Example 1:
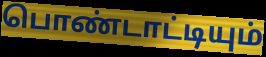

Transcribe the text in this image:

பொண்டாட்டியும்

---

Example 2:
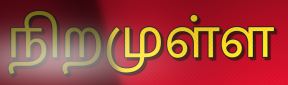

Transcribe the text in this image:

நிறமுள்ள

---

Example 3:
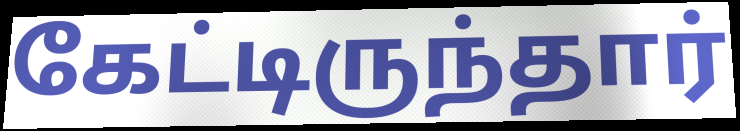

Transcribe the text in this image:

கேட்டிருந்தார்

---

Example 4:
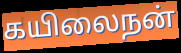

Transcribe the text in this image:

கயிலைநன்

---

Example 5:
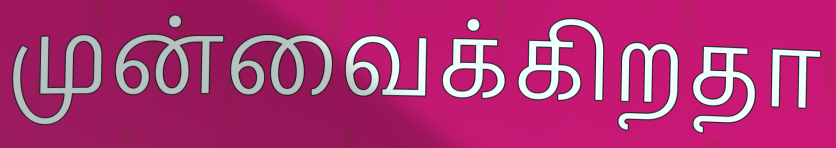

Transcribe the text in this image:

முன்வைக்கிறதா